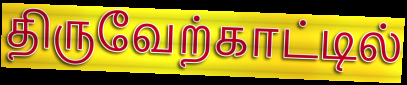
திருவேற்காட்டில்